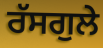
ਰੱਸਗੁਲੇ